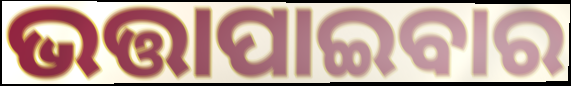
ଭତ୍ତାପାଇବାର